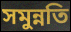
সমুন্নতি